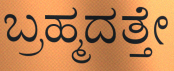
ಬ್ರಹ್ಮದತ್ತೇ